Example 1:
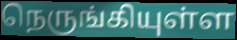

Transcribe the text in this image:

நெருங்கியுள்ள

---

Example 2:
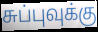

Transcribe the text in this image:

சுப்புவுக்கு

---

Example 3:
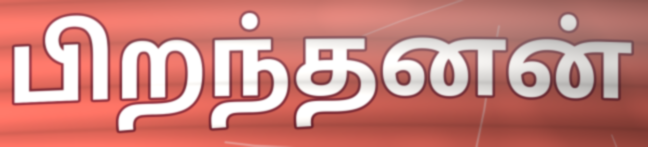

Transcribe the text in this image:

பிறந்தனன்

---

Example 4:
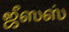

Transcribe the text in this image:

ஜீஸஸ்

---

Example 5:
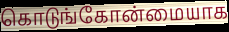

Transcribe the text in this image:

கொடுங்கோன்மையாக